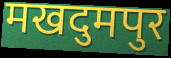
मखदुमपुर